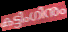
കട്ടിംഗിനും